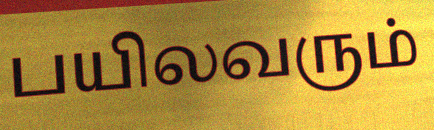
பயிலவரும்